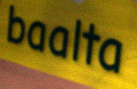
baalta